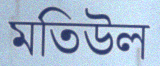
মতিউল